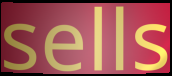
sells